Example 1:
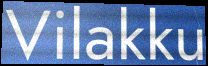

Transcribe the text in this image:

Vilakku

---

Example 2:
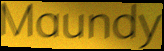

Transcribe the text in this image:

Maundy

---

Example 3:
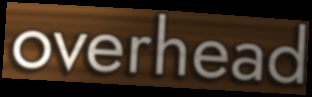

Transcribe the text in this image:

overhead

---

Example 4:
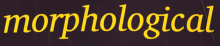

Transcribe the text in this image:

morphological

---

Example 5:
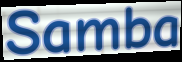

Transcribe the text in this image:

Samba